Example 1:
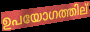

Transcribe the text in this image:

ഉപയോഗത്തില്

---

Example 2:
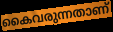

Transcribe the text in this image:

കൈവരുന്നതാണ്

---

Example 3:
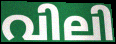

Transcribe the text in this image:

വിലി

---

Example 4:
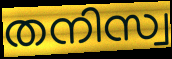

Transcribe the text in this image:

തനിസ്വ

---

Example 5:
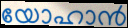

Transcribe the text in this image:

യോഹാൻ